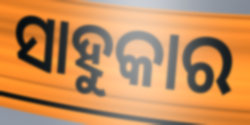
ସାହୁକାର